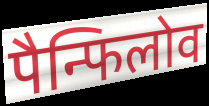
पैन्फिलोव